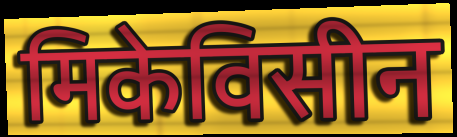
मिकेविसीन